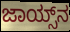
ಜಾಯ್ಸ್‌ನ